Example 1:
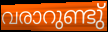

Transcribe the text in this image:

വരാറുണ്ടു്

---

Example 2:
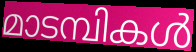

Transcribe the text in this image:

മാടമ്പികൾ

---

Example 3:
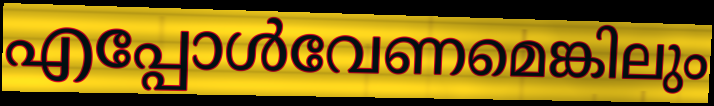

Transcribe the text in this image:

എപ്പോൾവേണമെങ്കിലും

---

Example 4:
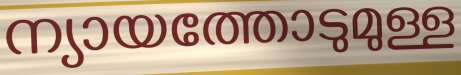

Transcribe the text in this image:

ന്യായത്തോടുമുള്ള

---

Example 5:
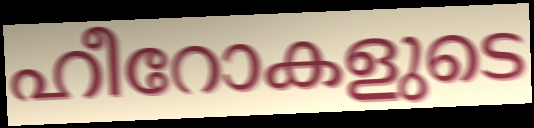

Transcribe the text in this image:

ഹീറോകളുടെ